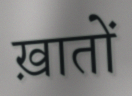
ख़ातों